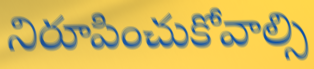
నిరూపించుకోవాల్సి